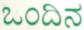
ಒಂದಿನ